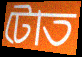
টোত